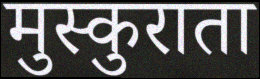
मुस्कुराता